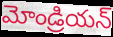
మోండ్రియన్